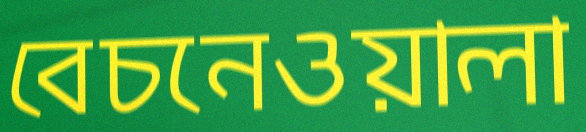
বেচনেওয়ালা